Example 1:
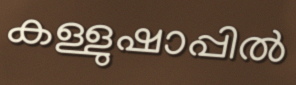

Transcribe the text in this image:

കള്ളുഷാപ്പിൽ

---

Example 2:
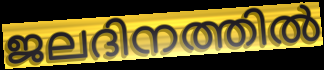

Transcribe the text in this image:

ജലദിനത്തിൽ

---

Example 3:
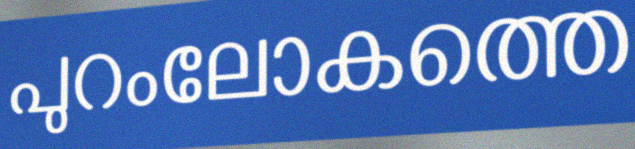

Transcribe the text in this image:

പുറംലോകത്തെ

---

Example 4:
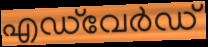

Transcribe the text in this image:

എഡ്‌വേർഡ്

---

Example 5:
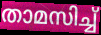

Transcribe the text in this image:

താമസിച്ച്